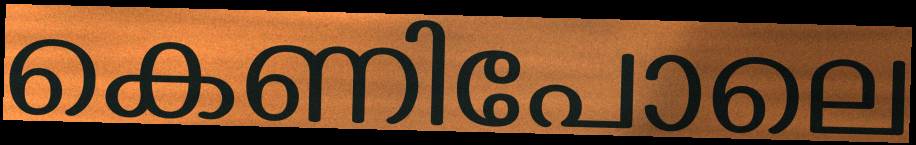
കെണിപോലെ